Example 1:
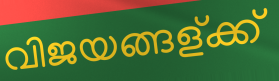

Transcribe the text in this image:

വിജയങ്ങള്ക്ക്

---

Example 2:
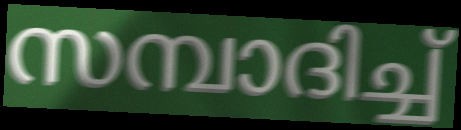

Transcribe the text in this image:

സമ്പാദിച്ച്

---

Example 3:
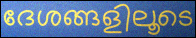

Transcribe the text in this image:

ദേശങ്ങളിലൂടെ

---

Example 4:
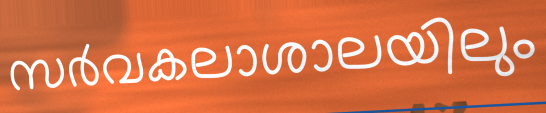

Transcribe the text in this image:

സർവകലാശാലയിലും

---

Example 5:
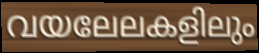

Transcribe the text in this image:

വയലേലകളിലും